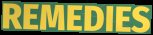
REMEDIES